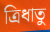
ত্রিধাতু